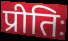
प्रीतिः